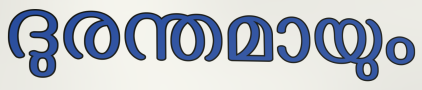
ദുരന്തമായും